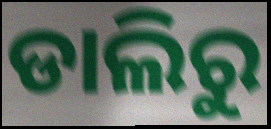
ଡାଲିରୁ